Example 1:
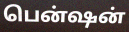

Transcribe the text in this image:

பென்ஷன்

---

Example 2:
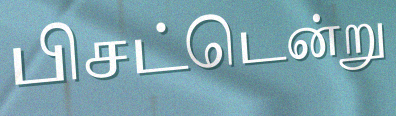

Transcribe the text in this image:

பிசட்டென்று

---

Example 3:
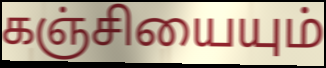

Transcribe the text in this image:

கஞ்சியையும்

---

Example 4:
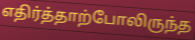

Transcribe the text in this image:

எதிர்த்தாற்போலிருந்த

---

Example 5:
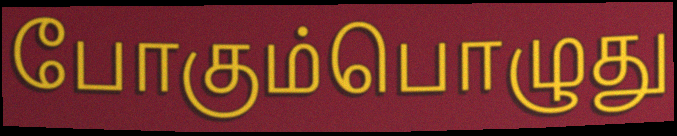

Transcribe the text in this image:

போகும்பொழுது